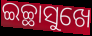
ଇଚ୍ଛାସୁଖେ